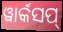
ୱାର୍କସପ୍